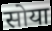
सोया